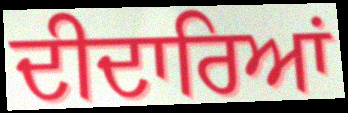
ਦੀਦਾਰਿਆਂ